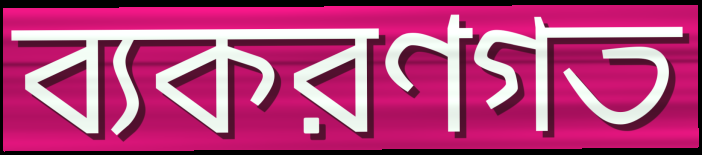
ব্যকরণগত